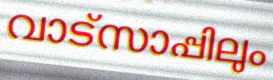
വാട്സാപ്പിലും